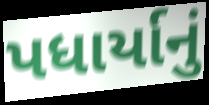
પધાર્યાનું